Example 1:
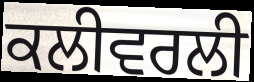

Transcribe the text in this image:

ਕਲੀਵਰਲੀ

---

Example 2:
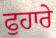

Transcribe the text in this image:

ਫੁਹਾਰੇ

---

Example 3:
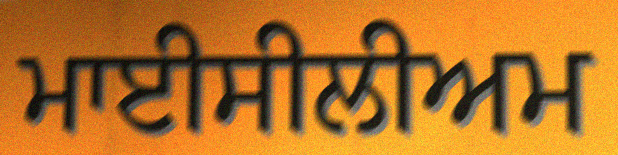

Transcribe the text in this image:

ਮਾਈਸੀਲੀਅਮ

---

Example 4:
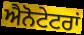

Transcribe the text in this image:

ਐਨੋਟੇਟਰਾਂ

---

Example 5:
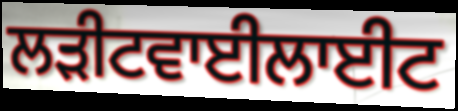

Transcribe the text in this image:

ਲੜੀਟਵਾਈਲਾਈਟ